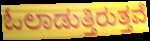
ಓಲಾಡುತ್ತಿರುತ್ತವೆ